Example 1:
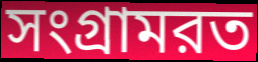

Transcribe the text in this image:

সংগ্রামরত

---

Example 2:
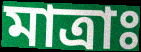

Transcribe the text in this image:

মাত্রাঃ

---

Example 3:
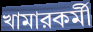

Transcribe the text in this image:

খামারকর্মী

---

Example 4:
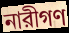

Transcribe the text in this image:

নারীগণ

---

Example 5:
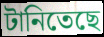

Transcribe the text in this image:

টানিতেছে